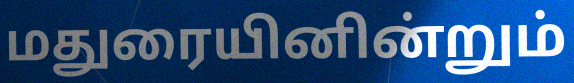
மதுரையினின்றும்